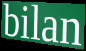
bilan